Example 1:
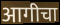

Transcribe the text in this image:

आगीचा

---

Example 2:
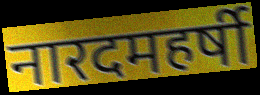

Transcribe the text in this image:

नारदमहर्षी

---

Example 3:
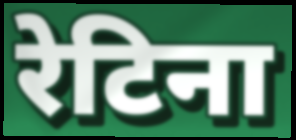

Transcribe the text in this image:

रेटिना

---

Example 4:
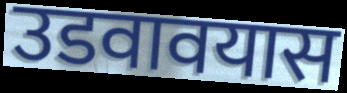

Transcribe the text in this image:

उडवावयास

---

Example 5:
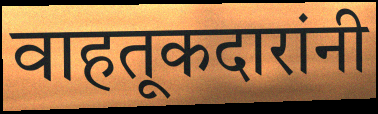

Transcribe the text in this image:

वाहतूकदारांनी